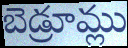
బెడ్రూమ్లు